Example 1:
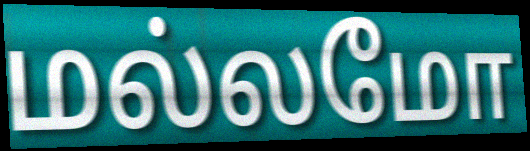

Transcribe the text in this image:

மல்லமோ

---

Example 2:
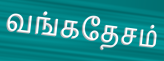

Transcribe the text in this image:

வங்கதேசம்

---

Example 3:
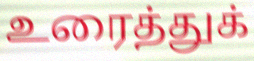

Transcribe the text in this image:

உரைத்துக்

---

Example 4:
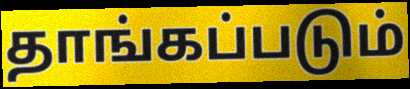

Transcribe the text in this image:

தாங்கப்படும்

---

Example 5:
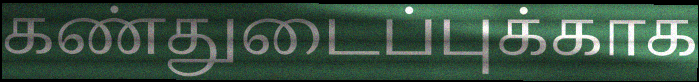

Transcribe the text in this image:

கண்துடைப்புக்காக